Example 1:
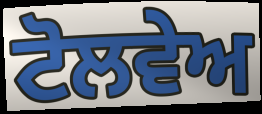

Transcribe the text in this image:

ਟੋਲਵੇਅ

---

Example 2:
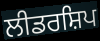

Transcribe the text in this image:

ਲੀਡਰਸ਼ਿਪ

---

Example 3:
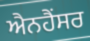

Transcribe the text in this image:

ਐਨਹੈਂਸਰ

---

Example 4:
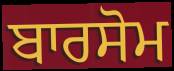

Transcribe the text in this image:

ਬਾਰਸੋਮ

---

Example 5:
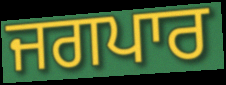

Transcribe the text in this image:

ਜਗਪਾਰ